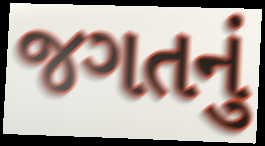
જગતનું